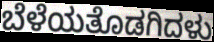
ಬೆಳೆಯತೊಡಗಿದಳು